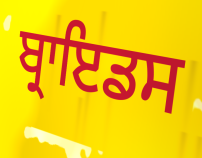
ਬ੍ਰਾਇਡਸ